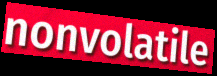
nonvolatile